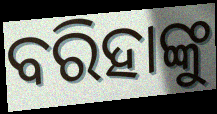
ବରିହାଙ୍କୁ